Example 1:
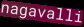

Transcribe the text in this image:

nagavalli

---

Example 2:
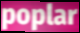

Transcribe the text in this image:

poplar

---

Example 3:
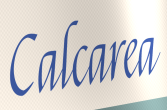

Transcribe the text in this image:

Calcarea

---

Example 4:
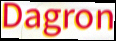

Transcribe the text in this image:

Dagron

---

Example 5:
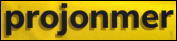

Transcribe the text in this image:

projonmer